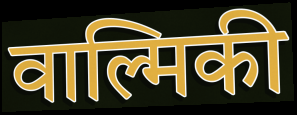
वाल्मिकी